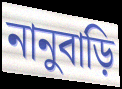
নানুবাড়ি